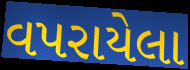
વપરાયેલા